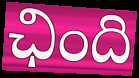
ఛింది